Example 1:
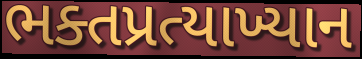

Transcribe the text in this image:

ભક્તપ્રત્યાખ્યાન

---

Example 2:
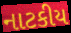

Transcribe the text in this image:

નાટકીય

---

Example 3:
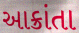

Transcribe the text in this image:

આક્રાંતા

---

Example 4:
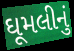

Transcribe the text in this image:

ઘૂમલીનું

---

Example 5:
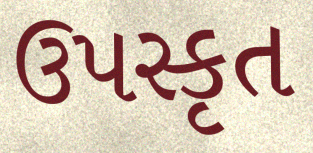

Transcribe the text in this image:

ઉપસ્કૃત